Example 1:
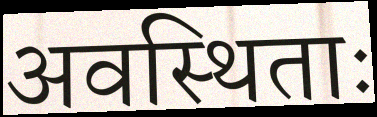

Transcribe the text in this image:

अवस्थिताः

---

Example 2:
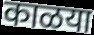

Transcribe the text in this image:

काळया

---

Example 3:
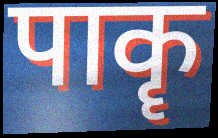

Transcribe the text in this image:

पाकॄ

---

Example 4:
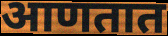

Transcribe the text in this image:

आणतात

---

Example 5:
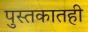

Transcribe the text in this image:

पुस्तकातही